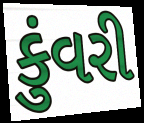
કુંવરી